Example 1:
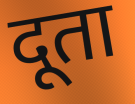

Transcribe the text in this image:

दूता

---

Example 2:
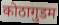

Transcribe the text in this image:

कोठागुडम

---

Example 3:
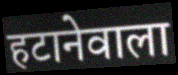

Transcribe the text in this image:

हटानेवाला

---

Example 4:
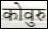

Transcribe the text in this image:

कोवुरु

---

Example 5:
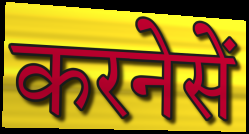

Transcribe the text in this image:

करनेसें